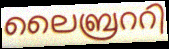
ലൈബ്രററി